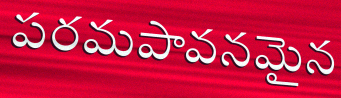
పరమపావనమైన